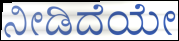
ನೀಡಿದೆಯೇ